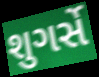
શુગર્સે